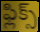
ఫ్లిక్స్